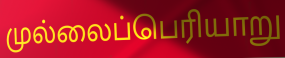
முல்லைப்பெரியாறு